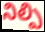
నిల్పి